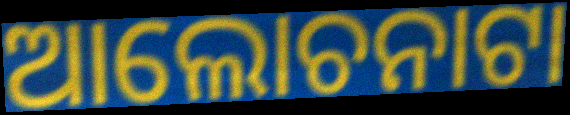
ଆଲୋଚନାଟା